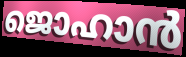
ജൊഹാൻ